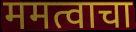
ममत्वाचा